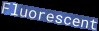
Fluorescent